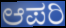
ಆಪರಿ